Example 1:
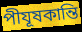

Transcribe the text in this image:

পীযূষকান্তি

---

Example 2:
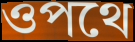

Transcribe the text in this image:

ওপথে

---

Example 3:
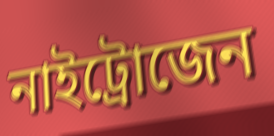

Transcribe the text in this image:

নাইট্রোজেন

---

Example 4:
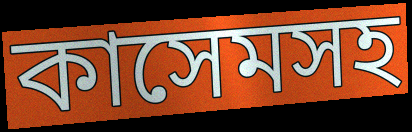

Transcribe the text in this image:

কাসেমসহ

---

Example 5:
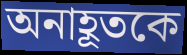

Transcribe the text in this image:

অনাহূতকে